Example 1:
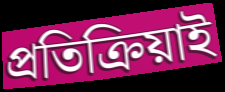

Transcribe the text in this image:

প্রতিক্রিয়াই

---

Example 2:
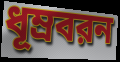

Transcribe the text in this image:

ধূম্রবরন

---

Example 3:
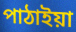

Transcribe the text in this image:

পাঠাইয়া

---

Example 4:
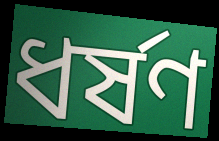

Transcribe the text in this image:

ধর্ষণ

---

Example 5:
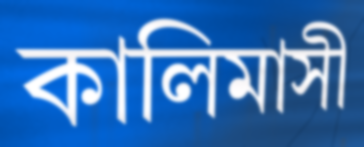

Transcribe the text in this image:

কালিমাসী